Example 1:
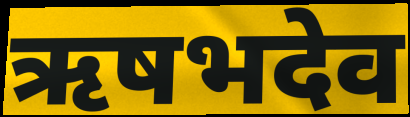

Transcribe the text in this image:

ऋषभदेव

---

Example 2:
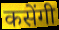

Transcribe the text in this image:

कसेंगी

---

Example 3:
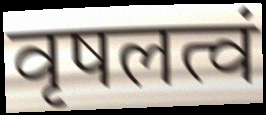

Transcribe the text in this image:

वृषलत्वं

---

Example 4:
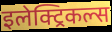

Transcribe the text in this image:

इलेक्ट्रिकल्स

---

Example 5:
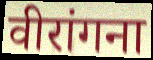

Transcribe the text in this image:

वीरांगना